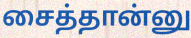
சைத்தான்னு